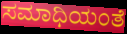
ಸಮಾಧಿಯಂತೆ